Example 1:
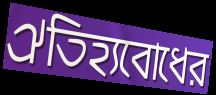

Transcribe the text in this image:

ঐতিহ্যবোধের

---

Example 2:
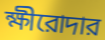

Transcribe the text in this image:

ক্ষীরোদার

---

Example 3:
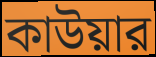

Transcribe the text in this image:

কাউয়ার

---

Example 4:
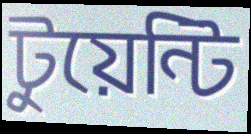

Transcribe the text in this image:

টুয়েন্টি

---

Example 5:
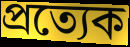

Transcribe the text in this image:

প্রত্যেক